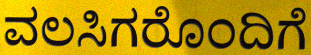
ವಲಸಿಗರೊಂದಿಗೆ